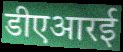
डीएआरई